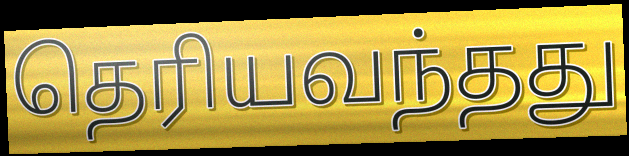
தெரியவந்தது